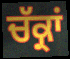
ਚੱਕ੍ਰਾਂ